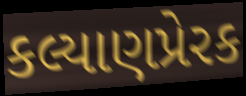
કલ્યાણપ્રેરક